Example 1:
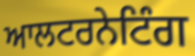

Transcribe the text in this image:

ਆਲਟਰਨੇਟਿੰਗ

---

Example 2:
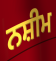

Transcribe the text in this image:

ਨਸ਼ੀਮ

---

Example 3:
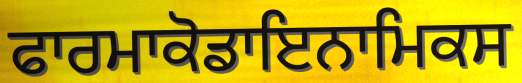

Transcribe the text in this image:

ਫਾਰਮਾਕੋਡਾਇਨਾਮਿਕਸ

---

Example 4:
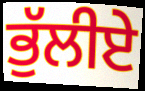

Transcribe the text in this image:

ਭੁੱਲੀਏ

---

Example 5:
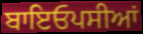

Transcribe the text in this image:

ਬਾਇਓਪਸੀਆਂ